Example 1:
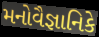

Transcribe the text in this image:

મનોવૈજ્ઞાનિકે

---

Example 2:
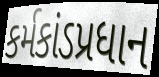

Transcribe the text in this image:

કર્મકાંડપ્રધાન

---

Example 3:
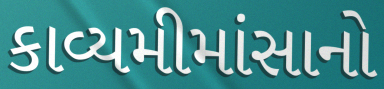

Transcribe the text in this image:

કાવ્યમીમાંસાનો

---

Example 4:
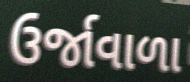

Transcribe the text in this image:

ઉર્જાવાળા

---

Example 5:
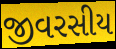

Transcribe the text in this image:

જીવરસીય